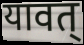
यावत्